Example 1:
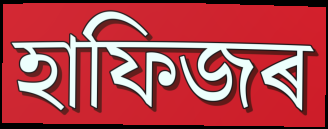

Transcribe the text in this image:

হাফিজৰ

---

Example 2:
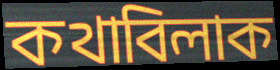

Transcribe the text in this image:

কথাবিলাক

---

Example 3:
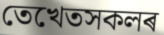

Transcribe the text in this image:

তেখেতসকলৰ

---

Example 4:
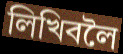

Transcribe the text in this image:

লিখিবলৈ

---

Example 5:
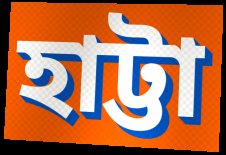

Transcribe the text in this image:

হাট্টা